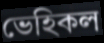
ভেহিকল